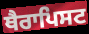
ਥੈਰਾਪਿਸਟ